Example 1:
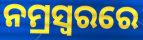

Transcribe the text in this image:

ନମ୍ରସ୍ୱରରେ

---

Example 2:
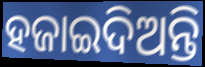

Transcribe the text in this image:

ହଜାଇଦିଅନ୍ତି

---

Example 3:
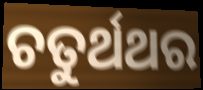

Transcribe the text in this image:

ଚତୁର୍ଥଥର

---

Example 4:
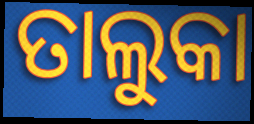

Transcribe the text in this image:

ତାଲୁକା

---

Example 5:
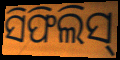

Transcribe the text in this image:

ସିଫିଲିସ୍